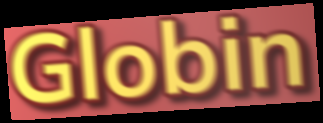
Globin